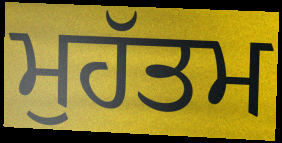
ਮੁਹੱਤਮ